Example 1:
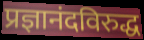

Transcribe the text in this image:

प्रज्ञानंदविरुद्ध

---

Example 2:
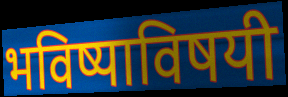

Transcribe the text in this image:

भविष्याविषयी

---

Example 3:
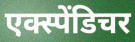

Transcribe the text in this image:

एक्स्पेंडिचर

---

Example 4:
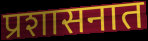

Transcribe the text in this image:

प्रशासनात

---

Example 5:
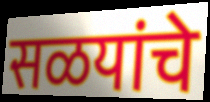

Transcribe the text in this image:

सळयांचे